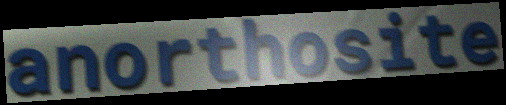
anorthosite